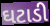
ઘટાડી